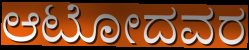
ಆಟೋದವರ